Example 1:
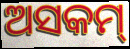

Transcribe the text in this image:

ଅସକମ୍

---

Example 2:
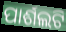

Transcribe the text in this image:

ପାର୍ଶଲଟି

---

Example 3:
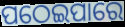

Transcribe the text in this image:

ପଠେଇପାରେ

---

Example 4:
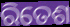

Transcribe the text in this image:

ରିତେଶ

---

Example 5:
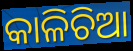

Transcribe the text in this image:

କାଳିଚିଆ